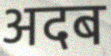
अदब